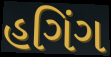
હગિંગ